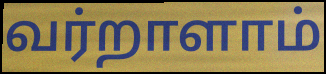
வர்றாளாம்